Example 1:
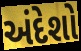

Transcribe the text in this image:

અંદેશો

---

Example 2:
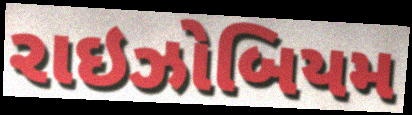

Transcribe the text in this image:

રાઇઝોબિયમ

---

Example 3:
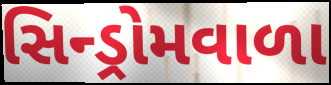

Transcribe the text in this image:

સિન્ડ્રોમવાળા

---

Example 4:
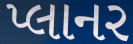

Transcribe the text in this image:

પ્લાનર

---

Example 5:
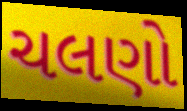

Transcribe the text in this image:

ચલણો